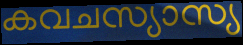
കവചസ്യാസ്യ